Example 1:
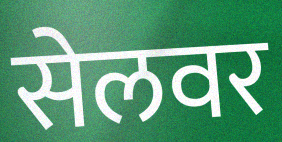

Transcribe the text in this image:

सेलवर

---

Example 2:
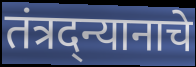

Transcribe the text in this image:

तंत्रद्न्यानाचे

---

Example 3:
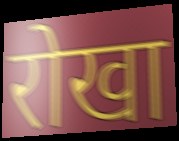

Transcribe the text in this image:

रोखा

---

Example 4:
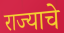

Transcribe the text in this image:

राज्याचे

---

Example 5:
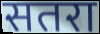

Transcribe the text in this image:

सतरा